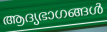
ആദ്യഭാഗങ്ങൾ